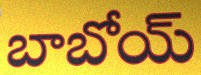
బాబోయ్